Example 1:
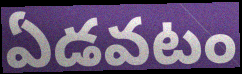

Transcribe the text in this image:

ఏడవటం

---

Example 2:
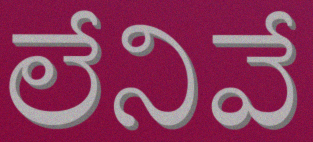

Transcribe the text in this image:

లేనివే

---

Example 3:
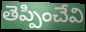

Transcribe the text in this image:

తెప్పించేవి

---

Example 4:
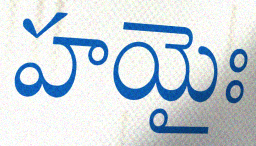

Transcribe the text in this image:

హయైః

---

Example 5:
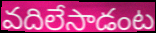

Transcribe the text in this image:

వదిలేసాడంట